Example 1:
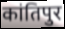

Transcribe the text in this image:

कांतिपुर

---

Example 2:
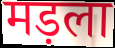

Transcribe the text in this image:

मड़ला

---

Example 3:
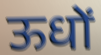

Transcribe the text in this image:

ऊधों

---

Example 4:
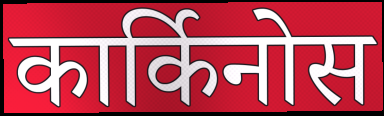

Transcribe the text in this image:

कार्किनोस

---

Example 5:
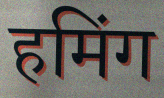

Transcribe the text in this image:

हमिंग